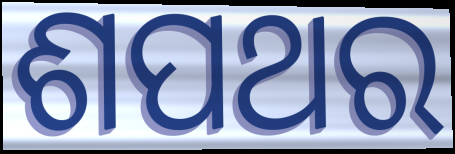
ଶପଥର